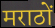
मराठों